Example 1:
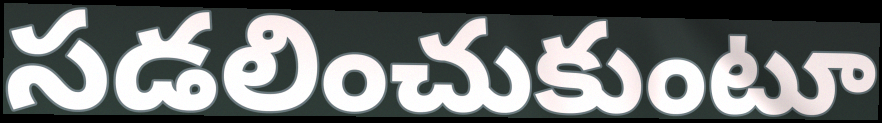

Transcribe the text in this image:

సడలించుకుంటూ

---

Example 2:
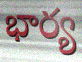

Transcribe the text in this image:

భార్య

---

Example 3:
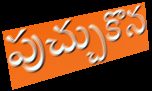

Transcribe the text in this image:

పుచ్చుకొన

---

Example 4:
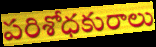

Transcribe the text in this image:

పరిశోధకురాలు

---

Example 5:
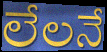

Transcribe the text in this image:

లేలనే